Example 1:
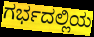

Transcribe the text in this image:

ಗರ್ಭದಲ್ಲಿಯ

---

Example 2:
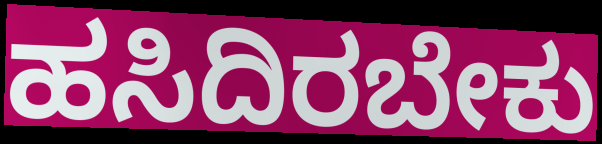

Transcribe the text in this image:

ಹಸಿದಿರಬೇಕು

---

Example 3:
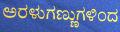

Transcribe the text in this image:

ಅರಳುಗಣ್ಣುಗಳಿಂದ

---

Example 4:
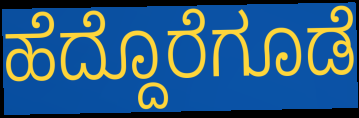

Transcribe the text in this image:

ಹೆದ್ದೊರೆಗೂಡೆ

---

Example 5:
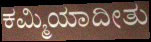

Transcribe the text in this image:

ಕಮ್ಮಿಯಾದೀತು